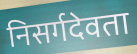
निसर्गदेवता